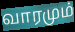
வாரமும்